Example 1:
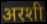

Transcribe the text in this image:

अरशी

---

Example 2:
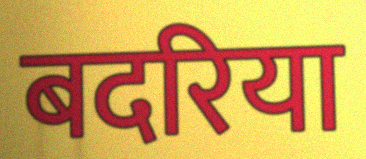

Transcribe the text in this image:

बदरिया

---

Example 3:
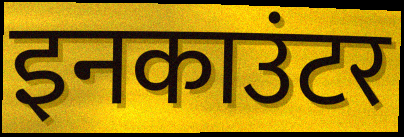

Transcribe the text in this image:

इनकाउंटर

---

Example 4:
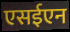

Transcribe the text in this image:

एसईएन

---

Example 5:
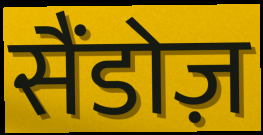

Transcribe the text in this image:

सैंडोज़